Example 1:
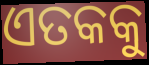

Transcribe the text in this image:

ଏତକକୁ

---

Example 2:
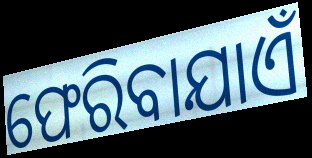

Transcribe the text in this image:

ଫେରିବାଯାଏଁ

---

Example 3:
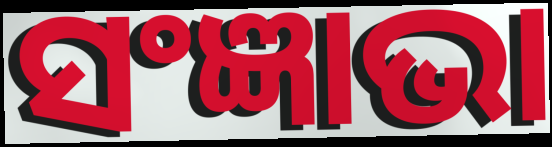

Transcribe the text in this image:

ସଂଜ୍ଞାଭା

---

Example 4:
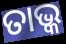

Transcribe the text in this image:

ତାଭ୍କ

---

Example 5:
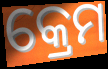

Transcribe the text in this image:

କ୍ରେମ